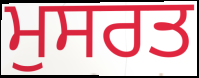
ਮੁਸਰਤ